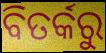
ବିତର୍କରୁ